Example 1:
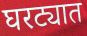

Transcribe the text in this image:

घरट्यात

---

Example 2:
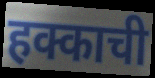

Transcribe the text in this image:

हक्काची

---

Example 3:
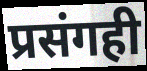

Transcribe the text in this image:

प्रसंगही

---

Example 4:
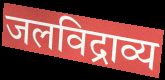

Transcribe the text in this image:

जलविद्राव्य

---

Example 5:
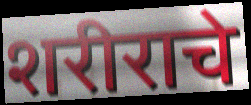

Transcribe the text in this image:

शरीराचे